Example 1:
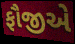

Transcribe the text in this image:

ફૌજીએ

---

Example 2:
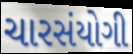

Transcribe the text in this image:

ચારસંયોગી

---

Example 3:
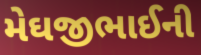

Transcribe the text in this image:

મેઘજીભાઈની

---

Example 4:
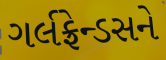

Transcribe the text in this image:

ગર્લફ્રેન્ડસને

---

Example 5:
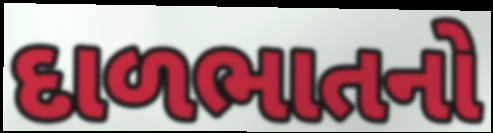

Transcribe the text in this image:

દાળભાતનો